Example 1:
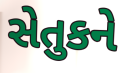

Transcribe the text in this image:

સેતુકને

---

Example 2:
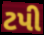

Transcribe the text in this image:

ટપી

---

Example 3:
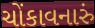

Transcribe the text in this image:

ચોંકાવનારું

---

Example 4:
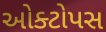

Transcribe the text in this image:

ઓક્ટોપસ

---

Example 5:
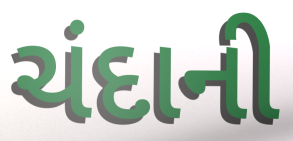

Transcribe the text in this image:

ચંદાની